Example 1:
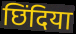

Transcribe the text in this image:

छिंदिया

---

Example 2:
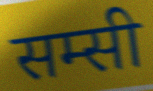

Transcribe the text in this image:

सम्सी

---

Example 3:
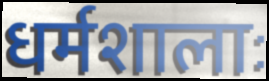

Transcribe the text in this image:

धर्मशालाः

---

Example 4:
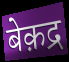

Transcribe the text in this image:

बेक़द्र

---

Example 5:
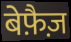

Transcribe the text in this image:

बेफ़ैज़